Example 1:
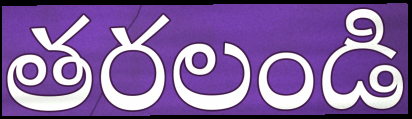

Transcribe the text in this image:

తరలండి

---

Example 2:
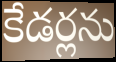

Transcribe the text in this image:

కేడర్లను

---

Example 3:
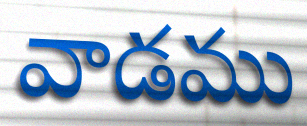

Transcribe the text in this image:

వాడము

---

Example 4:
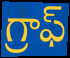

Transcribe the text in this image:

గ్రాఫ్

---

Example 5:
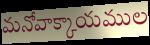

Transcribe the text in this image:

మనోవాక్కాయముల